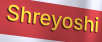
Shreyoshi